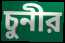
চুনীর